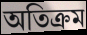
অতিক্রম